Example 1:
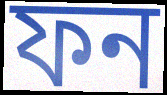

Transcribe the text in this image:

ফন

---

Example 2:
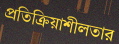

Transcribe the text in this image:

প্রতিক্রিয়াশীলতার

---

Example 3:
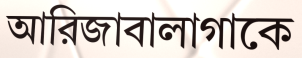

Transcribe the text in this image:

আরিজাবালাগাকে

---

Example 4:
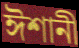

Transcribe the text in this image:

ঈশানী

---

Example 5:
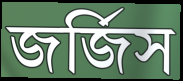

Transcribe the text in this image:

জর্জিস